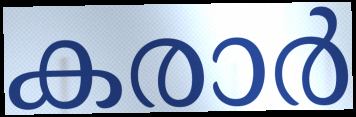
കരാർ